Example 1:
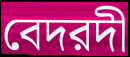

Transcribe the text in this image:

বেদরদী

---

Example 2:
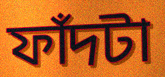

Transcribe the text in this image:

ফাঁদটা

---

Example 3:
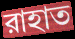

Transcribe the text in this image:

রাহাত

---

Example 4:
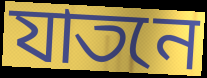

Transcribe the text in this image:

যাতনে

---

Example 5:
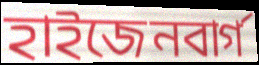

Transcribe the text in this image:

হাইজেনবার্গ